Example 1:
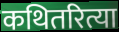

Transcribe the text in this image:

कथितरित्या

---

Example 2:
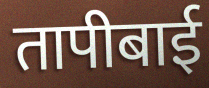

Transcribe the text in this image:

तापीबाई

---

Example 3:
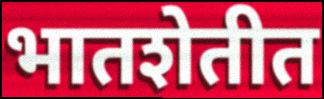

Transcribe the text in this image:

भातशेतीत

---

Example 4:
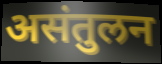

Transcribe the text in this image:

असंतुलन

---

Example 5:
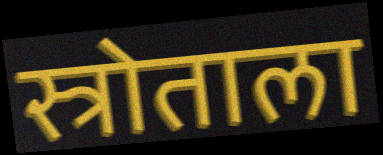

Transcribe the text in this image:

स्त्रोताला